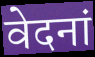
वेदनां